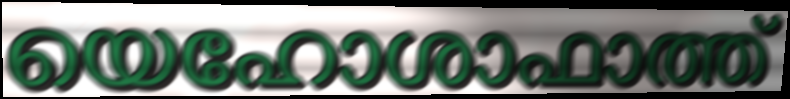
യെഹോശാഫാത്ത്